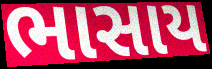
ભાસાય